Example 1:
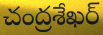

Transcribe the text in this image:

చంద్రశేఖర్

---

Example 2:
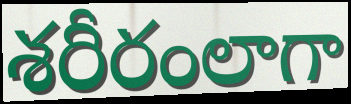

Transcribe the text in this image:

శరీరంలాగా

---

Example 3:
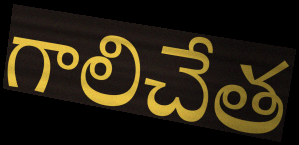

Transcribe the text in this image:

గాలిచేత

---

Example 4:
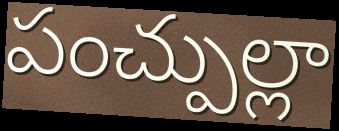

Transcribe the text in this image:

పంచ్పుల్లా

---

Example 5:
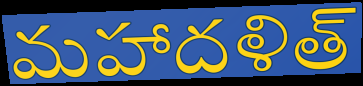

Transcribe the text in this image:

మహాదళిత్